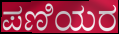
ಪಣಿಯರ